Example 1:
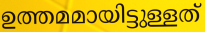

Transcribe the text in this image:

ഉത്തമമായിട്ടുള്ളത്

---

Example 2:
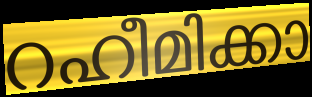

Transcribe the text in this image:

റഹീമിക്കാ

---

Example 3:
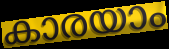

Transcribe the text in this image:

കാരയാം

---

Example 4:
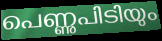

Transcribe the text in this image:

പെണ്ണുപിടിയും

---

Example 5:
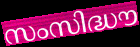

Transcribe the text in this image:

സംസിദ്ധൗ